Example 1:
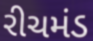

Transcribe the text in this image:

રીચમંડ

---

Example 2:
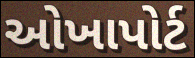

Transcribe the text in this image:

ઓખાપોર્ટ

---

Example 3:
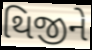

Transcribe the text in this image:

થિજીને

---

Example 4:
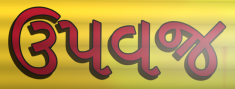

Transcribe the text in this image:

ઉપવજ્ર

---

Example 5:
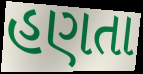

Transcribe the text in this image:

હણતા